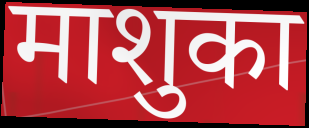
माशुका